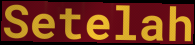
Setelah